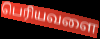
பெரியவளை